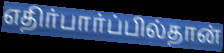
எதிர்பார்ப்பில்தான்